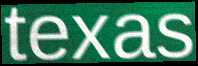
texas